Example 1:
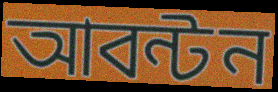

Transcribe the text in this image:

আবন্টন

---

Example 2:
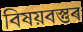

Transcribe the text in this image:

বিষয়বস্তুৰ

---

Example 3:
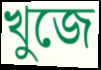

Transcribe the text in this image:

খুজে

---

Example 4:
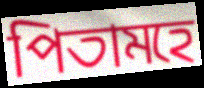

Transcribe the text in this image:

পিতামহে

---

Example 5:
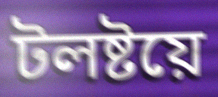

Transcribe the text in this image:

টলষ্টয়ে